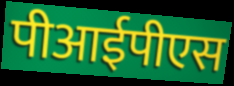
पीआईपीएस